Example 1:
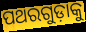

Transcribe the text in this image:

ପଥରଗୁଡ଼ାକୁ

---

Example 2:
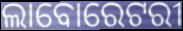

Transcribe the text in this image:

ଲାବୋରେଟରୀ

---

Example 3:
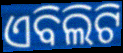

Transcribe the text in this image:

ଏବିଲିଟି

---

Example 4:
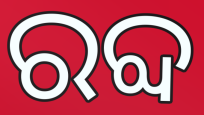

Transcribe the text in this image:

ରବ୍ଦ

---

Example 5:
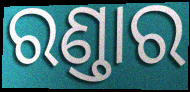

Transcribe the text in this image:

ରଣ୍ଡାର